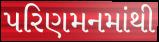
પરિણમનમાંથી